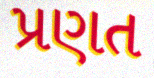
પ્રણત